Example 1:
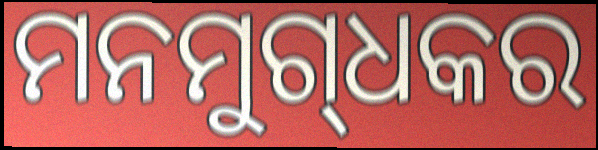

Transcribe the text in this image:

ମନମୁଗ୍‌ଧକର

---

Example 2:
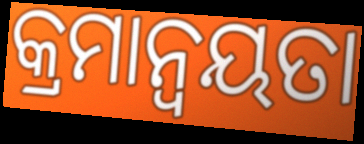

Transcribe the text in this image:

କ୍ରମାନ୍ବୟତା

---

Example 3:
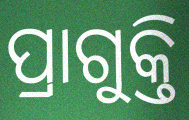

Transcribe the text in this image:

ପ୍ରାଗୁକ୍ତି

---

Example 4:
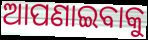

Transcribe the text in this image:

ଆପଣାଇବାକୁ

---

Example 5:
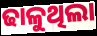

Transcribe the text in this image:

ଢାଳୁଥିଲା